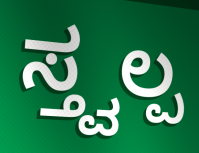
ಸ್ತ್ವಲ್ಪ